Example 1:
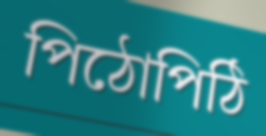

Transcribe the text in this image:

পিঠোপিঠি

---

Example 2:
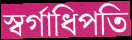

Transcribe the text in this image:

স্বর্গাধিপতি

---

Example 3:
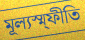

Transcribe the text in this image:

মূল্যস্ম্ফীতি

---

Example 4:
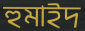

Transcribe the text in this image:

হুমাইদ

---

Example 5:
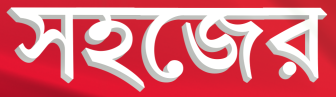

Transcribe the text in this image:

সহজের